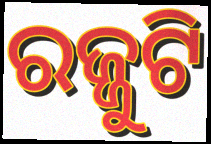
ରଜ୍ଜୁଟି